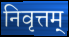
निवृत्तम्